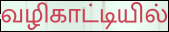
வழிகாட்டியில்